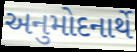
અનુમોદનાર્થે